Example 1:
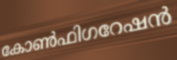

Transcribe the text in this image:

കോൺഫിഗറേഷൻ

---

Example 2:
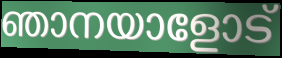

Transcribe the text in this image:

ഞാനയാളോട്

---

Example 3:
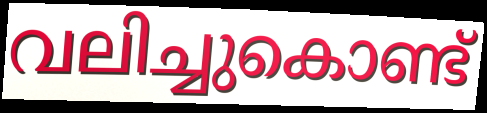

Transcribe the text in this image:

വലിച്ചുകൊണ്ട്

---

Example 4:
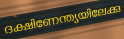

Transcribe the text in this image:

ദക്ഷിണേന്ത്യയിലേക്കു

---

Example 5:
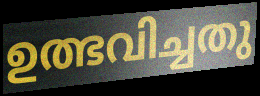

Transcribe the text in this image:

ഉത്ഭവിച്ചതു